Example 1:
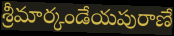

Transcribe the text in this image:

శ్రీమార్కండేయపురాణే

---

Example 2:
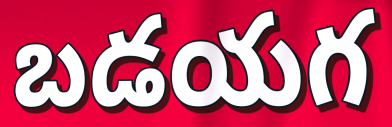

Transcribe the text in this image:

బడయగ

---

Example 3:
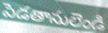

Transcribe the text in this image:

పెడతానులెండి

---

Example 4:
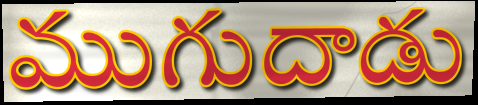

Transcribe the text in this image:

ముగుదాడు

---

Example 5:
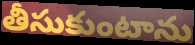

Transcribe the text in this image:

తీసుకుంటాను